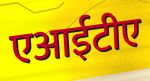
एआईटीए